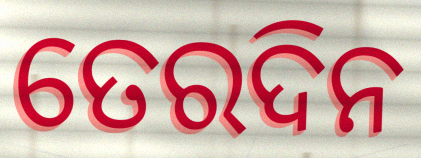
ତେରଦିନ